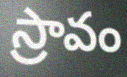
స్రావం